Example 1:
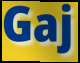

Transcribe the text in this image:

Gaj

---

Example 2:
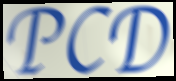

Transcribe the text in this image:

PCD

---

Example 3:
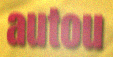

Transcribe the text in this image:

autou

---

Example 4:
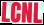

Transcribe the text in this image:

LCNL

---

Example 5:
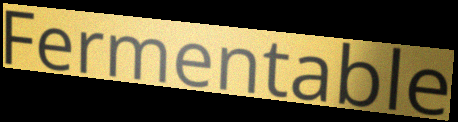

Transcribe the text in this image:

Fermentable